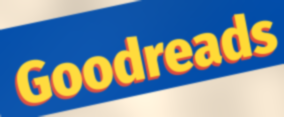
Goodreads